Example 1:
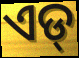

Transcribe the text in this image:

ଏଡ୍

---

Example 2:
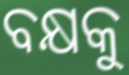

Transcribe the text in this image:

ବକ୍ଷକୁ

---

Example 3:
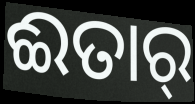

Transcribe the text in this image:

ଈତାର୍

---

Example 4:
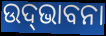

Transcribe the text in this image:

ଉଦ୍‍ଭାବନା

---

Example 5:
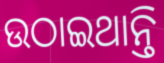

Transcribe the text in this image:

ଉଠାଇଥାନ୍ତି